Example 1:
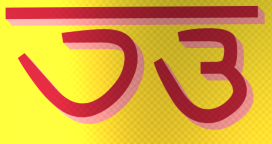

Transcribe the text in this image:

তত্ত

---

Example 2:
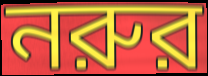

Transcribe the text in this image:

নরুর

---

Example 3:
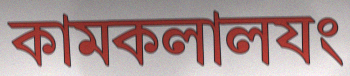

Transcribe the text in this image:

কামকলালযং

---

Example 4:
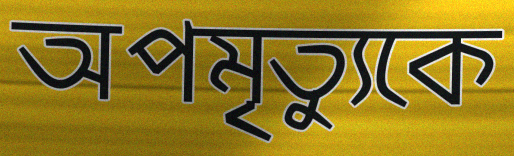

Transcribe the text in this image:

অপমৃত্যুকে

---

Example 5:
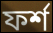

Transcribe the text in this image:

ফর্শ